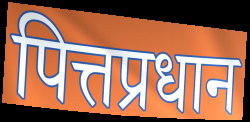
पित्तप्रधान